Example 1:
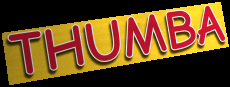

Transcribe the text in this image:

THUMBA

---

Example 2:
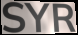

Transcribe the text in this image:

SYR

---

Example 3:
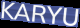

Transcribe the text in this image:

KARYU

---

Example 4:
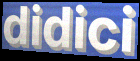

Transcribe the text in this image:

didici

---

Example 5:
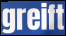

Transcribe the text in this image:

greift